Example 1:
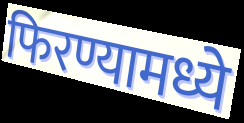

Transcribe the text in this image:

फिरण्यामध्ये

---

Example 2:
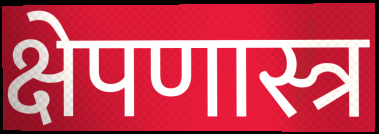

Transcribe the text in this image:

क्षेपणास्त्र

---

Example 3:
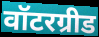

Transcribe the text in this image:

वॉटरग्रीड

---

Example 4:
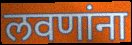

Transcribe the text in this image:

लवणांना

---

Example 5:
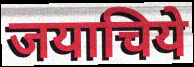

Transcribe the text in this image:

जयाचिये